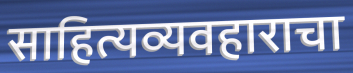
साहित्यव्यवहाराचा